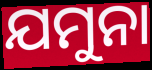
ଯମୁନା